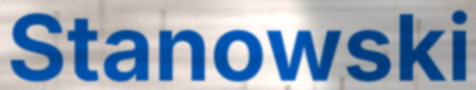
Stanowski